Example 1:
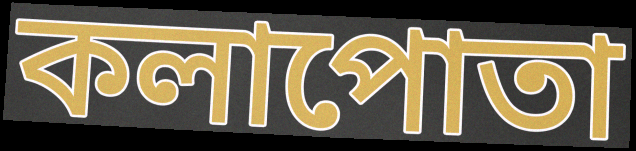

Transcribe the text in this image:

কলাপোতা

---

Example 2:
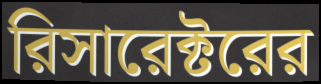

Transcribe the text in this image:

রিসারেক্টরের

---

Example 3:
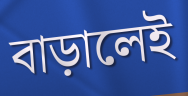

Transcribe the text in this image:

বাড়ালেই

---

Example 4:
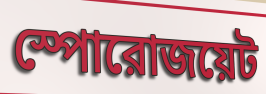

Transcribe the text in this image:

স্পোরোজয়েট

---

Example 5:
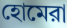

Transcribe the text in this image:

হোমেরা